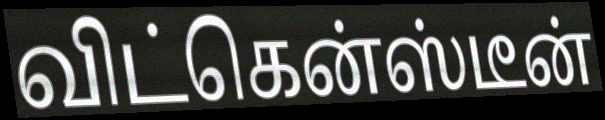
விட்கென்ஸ்டீன்